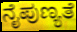
ನೈಪುಣ್ಯತೆ